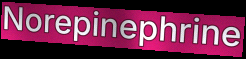
Norepinephrine